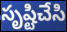
సృష్టిచేసి